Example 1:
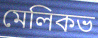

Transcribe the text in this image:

মেলিকভ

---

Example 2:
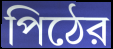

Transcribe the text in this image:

পিঠের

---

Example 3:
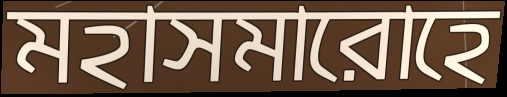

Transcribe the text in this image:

মহাসমারোহে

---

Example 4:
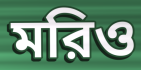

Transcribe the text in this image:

মরিও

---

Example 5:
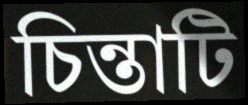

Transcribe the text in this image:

চিন্তাটি